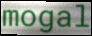
mogal